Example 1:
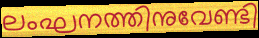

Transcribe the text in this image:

ലംഘനത്തിനുവേണ്ടി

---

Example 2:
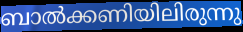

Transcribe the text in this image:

ബാൽക്കണിയിലിരുന്നു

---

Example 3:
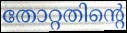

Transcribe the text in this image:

തോറ്റതിന്റെ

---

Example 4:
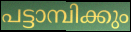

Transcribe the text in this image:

പട്ടാമ്പിക്കും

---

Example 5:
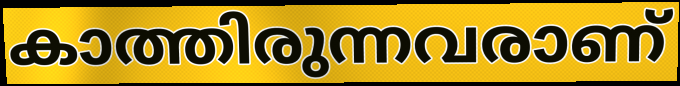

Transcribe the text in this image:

കാത്തിരുന്നവരാണ്